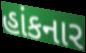
હાંકનાર